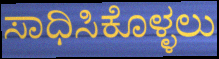
ಸಾಧಿಸಿಕೊಳ್ಳಲು